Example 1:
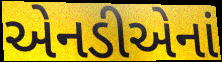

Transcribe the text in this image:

એનડીએનાં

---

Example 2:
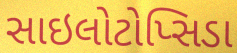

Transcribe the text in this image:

સાઇલોટોપ્સિડા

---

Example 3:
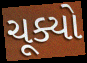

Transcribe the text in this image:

ચૂક્યો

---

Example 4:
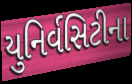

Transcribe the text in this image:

યુનિર્વસિટીના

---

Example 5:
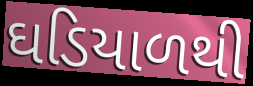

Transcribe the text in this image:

ઘડિયાળથી